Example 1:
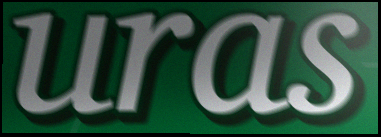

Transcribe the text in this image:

uras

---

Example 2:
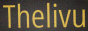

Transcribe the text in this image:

Thelivu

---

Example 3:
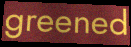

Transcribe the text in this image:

greened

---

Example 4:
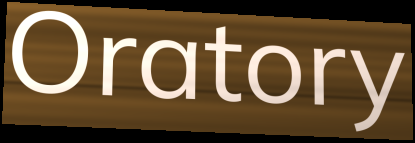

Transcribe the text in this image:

Oratory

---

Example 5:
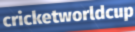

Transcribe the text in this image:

cricketworldcup